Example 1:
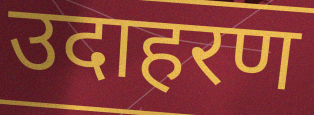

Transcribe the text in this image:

उदाहरण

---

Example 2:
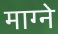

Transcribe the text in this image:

माग्ने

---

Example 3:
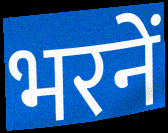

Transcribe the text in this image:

भरनें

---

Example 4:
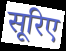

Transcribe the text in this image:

सूरिए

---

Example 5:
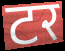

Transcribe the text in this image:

टर